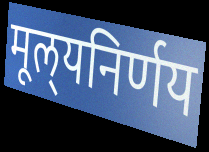
मूल्यनिर्णय